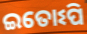
ଇତୋଽପି